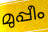
മുപ്പീം